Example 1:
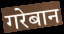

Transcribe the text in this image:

गरेबान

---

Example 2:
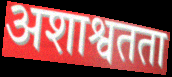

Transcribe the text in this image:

अशाश्वतता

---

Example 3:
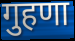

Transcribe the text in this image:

गुहणा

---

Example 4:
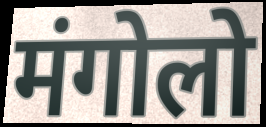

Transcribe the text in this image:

मंगोलो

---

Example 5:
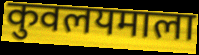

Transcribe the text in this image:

कुवलयमाला